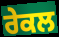
ਰੇਕਲ